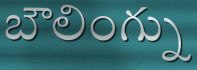
బౌలింగ్ను